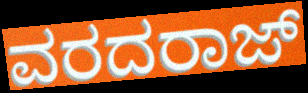
ವರದರಾಜ್